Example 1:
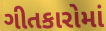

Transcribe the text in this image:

ગીતકારોમાં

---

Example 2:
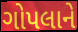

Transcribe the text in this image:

ગોપલાને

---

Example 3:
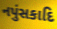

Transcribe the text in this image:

નપુંસકાદિ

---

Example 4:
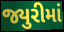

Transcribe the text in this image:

જ્યુરીમાં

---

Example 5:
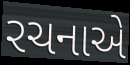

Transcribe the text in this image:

રચનાએ